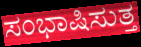
ಸಂಭಾಷಿಸುತ್ತ